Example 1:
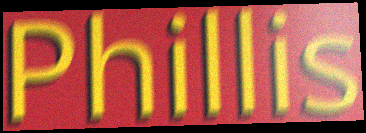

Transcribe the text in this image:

Phillis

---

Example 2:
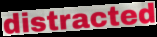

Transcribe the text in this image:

distracted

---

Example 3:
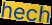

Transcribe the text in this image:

hech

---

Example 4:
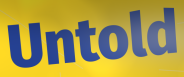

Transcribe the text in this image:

Untold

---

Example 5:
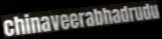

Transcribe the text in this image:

chinaveerabhadrudu